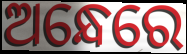
ଅନ୍ଧେରେ